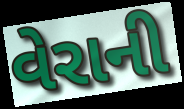
વેરાની